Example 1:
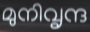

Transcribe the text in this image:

മുനിവൃന്ദ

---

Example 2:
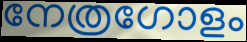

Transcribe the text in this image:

നേത്രഗോളം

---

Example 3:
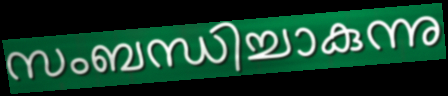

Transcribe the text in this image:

സംബന്ധിച്ചാകുന്നു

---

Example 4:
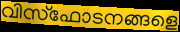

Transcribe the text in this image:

വിസ്ഫോടനങ്ങളെ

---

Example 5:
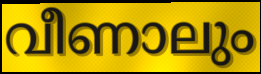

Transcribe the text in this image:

വീണാലും